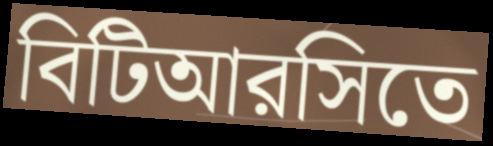
বিটিআরসিতে